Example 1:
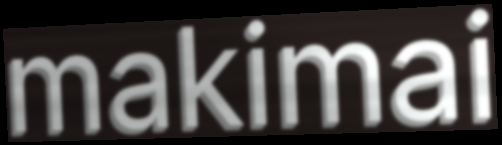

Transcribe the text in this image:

makimai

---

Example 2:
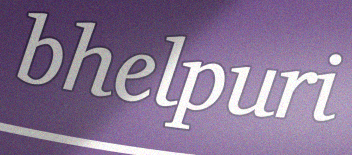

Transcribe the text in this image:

bhelpuri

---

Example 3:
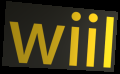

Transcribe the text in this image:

wiil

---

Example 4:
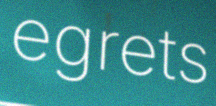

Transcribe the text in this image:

egrets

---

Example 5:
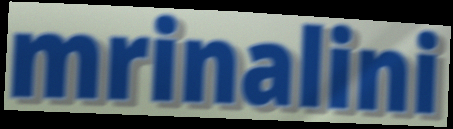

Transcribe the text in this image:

mrinalini